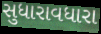
સુધારાવધારા